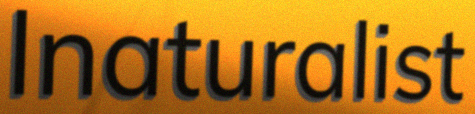
Inaturalist